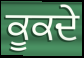
ਕੂਕਦੇ